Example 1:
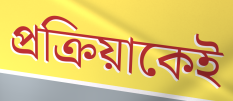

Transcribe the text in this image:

প্রক্রিয়াকেই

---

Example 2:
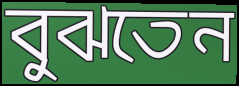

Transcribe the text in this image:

বুঝতেন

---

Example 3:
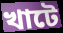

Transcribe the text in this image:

খাটে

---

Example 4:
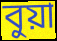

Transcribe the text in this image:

বুয়া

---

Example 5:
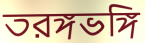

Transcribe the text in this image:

তরঙ্গভঙ্গি